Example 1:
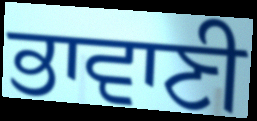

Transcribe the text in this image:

ਭਾਵਾਣੀ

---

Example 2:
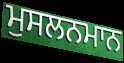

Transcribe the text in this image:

ਮੁਸਲਨਮਾਨ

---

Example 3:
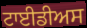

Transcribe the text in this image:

ਟਾਈਡੀਅਸ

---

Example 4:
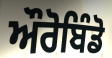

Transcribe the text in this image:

ਔਰੋਬਿੰਡੋ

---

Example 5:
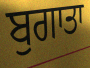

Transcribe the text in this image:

ਬੁਗਾਤਾ